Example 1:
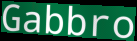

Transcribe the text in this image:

Gabbro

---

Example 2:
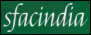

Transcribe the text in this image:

sfacindia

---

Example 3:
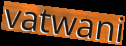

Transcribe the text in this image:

vatwani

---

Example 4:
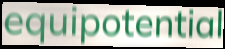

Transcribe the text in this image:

equipotential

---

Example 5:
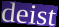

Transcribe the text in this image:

deist